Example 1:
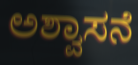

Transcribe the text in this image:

ಅಶ್ವಾಸನೆ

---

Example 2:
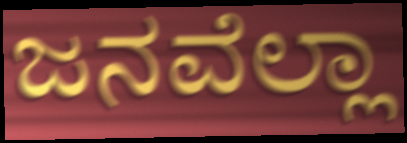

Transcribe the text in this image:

ಜನವೆಲ್ಲಾ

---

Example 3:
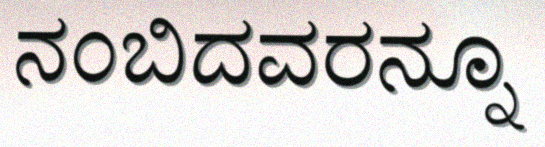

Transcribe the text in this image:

ನಂಬಿದವರನ್ನೂ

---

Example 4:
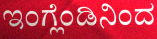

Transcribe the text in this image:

ಇಂಗ್ಲೆಂಡಿನಿಂದ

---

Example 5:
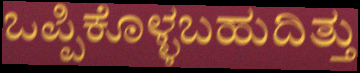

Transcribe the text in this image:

ಒಪ್ಪಿಕೊಳ್ಳಬಹುದಿತ್ತು